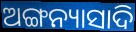
ଅଙ୍ଗନ୍ୟାସାଦି